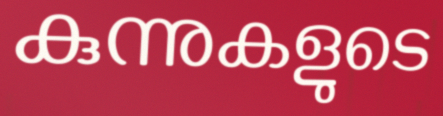
കുന്നുകളുടെ